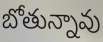
బోతున్నావు